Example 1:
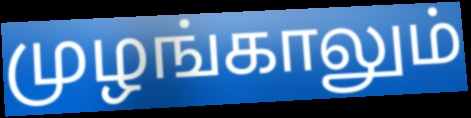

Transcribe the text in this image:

முழங்காலும்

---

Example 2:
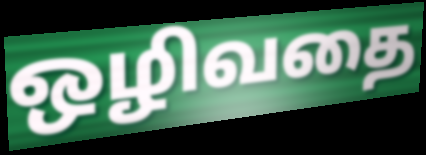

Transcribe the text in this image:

ஒழிவதை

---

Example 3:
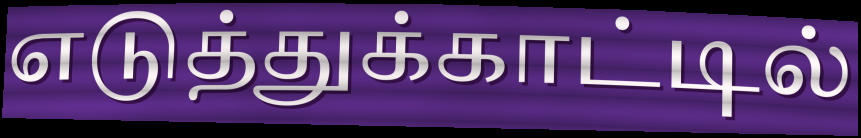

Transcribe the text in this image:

எடுத்துக்காட்டில்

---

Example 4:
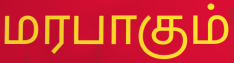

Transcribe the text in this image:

மரபாகும்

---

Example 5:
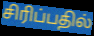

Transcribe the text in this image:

சிரிப்பதில்